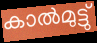
കാൽമുട്ടു്